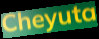
Cheyuta